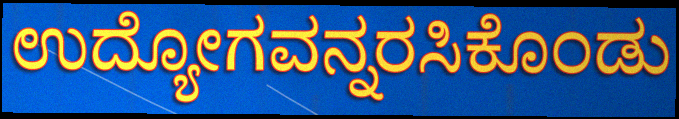
ಉದ್ಯೋಗವನ್ನರಸಿಕೊಂಡು